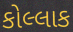
કોલ્લાક